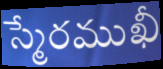
స్మేరముఖీ